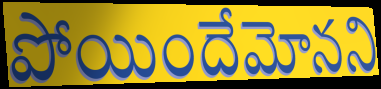
పోయిందేమోనని